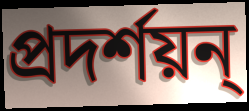
প্রদর্শয়ন্